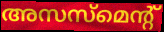
അസസ്മെന്റ്